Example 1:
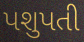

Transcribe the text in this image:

પશુપતી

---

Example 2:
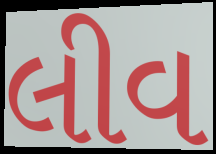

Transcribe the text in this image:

લીવ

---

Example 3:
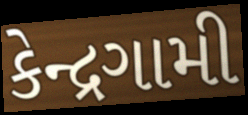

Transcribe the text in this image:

કેન્દ્રગામી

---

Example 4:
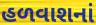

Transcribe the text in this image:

હળવાશનાં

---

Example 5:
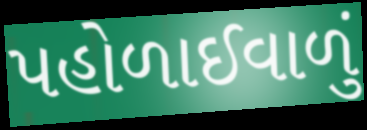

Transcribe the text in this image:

પહોળાઈવાળું